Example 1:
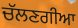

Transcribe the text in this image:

ਚੱਲਣਗੀਆ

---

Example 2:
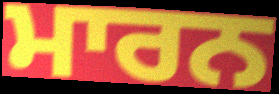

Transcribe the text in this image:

ਮਾਰਨ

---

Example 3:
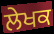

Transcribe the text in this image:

ਲੇਖਕ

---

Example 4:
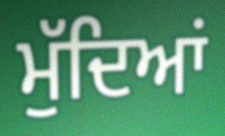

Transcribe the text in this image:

ਮੁੱਦਿਆਂ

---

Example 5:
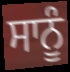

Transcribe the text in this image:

ਸਾਨੂੰ